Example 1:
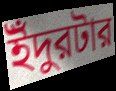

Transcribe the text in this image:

ইঁদুরটার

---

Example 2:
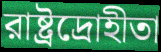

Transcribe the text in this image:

রাষ্ট্রদ্রোহীতা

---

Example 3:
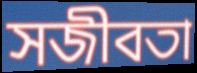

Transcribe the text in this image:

সজীবতা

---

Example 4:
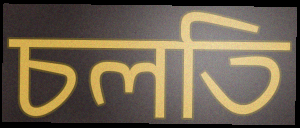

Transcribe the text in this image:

চলতি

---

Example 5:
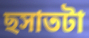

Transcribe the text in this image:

ছসাতটা